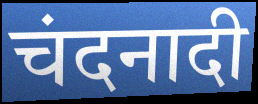
चंदनादी